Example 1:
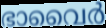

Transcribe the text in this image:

ഭാവൈർ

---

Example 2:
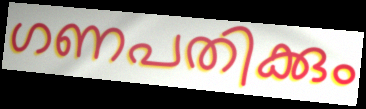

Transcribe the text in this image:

ഗണപതിക്കും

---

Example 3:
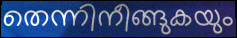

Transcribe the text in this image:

തെന്നിനീങ്ങുകയും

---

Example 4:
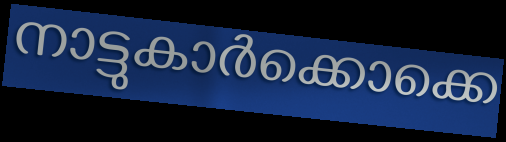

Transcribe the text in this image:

നാട്ടുകാർക്കൊക്കെ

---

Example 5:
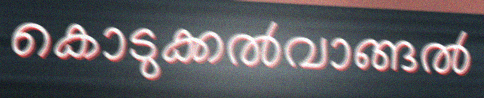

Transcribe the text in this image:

കൊടുക്കൽവാങ്ങൽ